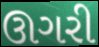
ઊગરી